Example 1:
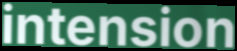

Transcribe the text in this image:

intension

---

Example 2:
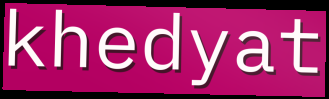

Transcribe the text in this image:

khedyat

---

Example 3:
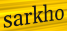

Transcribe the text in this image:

sarkho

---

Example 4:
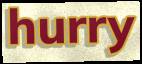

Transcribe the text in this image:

hurry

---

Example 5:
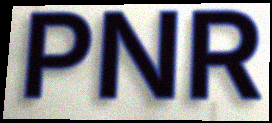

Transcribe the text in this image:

PNR